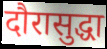
दौरासुद्धा